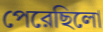
পেরেছিলো